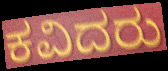
ಕವಿದರು